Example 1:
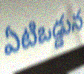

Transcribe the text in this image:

ఏటిఒడ్డున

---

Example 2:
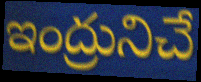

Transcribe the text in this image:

ఇంద్రునిచే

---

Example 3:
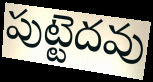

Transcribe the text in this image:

పుట్టెదవు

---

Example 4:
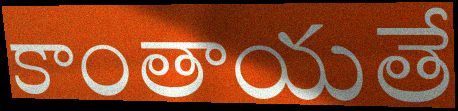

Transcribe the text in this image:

కాంతాయతే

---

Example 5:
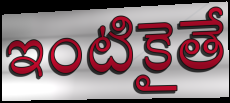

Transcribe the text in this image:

ఇంటికైతే